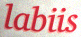
labiis